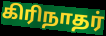
கிரிநாதர்